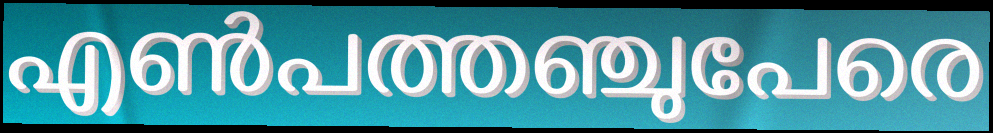
എൺപത്തഞ്ചുപേരെ